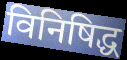
विनिषिद्ध